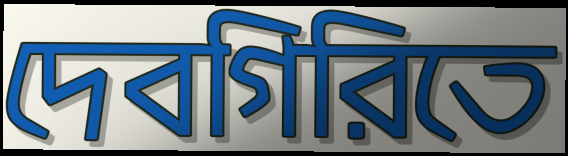
দেবগিরিতে